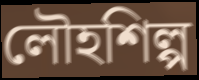
লৌহশিল্প